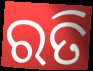
ରତି